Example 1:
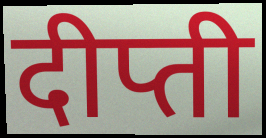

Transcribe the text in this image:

दीप्ती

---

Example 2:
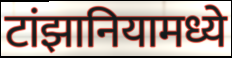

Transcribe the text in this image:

टांझानियामध्ये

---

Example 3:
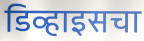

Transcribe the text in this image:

डिव्हाइसचा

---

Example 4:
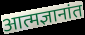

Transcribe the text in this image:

आत्मज्ञानांत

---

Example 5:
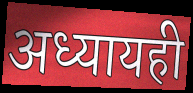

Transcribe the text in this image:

अध्यायही